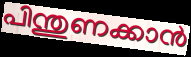
പിന്തുണക്കാൻ